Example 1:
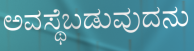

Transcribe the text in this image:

ಅವಸ್ಥೆಬಡುವುದನು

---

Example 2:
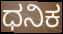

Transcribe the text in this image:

ಧನಿಕ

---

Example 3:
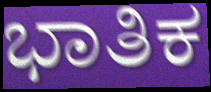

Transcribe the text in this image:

ಭಾತಿಕ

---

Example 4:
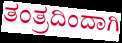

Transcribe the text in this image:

ತಂತ್ರದಿಂದಾಗಿ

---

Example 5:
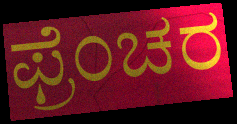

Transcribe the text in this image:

ಫ್ರೆಂಚರ